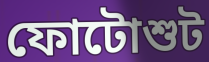
ফোটোশুট